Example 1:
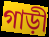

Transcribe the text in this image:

গাড়ী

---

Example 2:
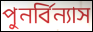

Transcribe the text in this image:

পুনর্বিন্যাস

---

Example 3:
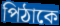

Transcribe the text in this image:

পিঠাকে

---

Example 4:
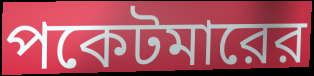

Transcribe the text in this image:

পকেটমারের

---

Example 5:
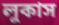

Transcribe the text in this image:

লুকাস